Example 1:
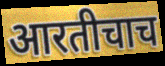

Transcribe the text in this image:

आरतीचाच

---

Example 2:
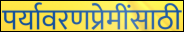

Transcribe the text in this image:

पर्यावरणप्रेमींसाठी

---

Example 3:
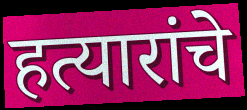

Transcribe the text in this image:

हत्यारांचे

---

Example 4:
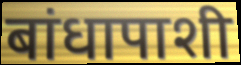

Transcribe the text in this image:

बांधापाशी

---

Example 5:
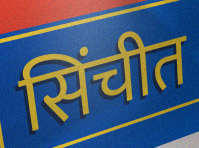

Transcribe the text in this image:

सिंचीत